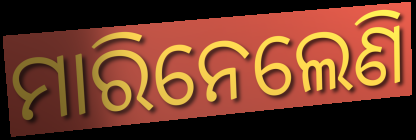
ମାରିନେଲେଣି